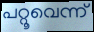
പറ്റൂവെന്ന്